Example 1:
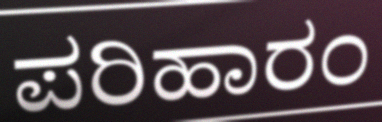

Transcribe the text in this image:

ಪರಿಹಾರಂ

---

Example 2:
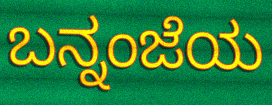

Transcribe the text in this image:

ಬನ್ನಂಜೆಯ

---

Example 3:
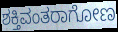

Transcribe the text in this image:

ಶಕ್ತಿವಂತರಾಗೋಣ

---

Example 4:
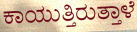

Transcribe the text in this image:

ಕಾಯುತ್ತಿರುತ್ತಾಳೆ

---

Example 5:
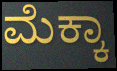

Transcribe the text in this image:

ಮೆಕ್ಕಾ